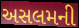
અસલમની